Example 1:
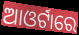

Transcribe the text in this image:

ଆଓର୍ଟାରେ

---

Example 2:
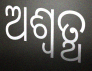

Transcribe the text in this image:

ଅଶ୍ବତ୍ଥ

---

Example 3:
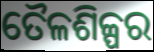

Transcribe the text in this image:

ତୈଳଶିଳ୍ପର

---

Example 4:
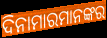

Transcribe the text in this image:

ଦିନାମାରମାନଙ୍କର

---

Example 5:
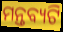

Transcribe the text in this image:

ମନ୍ତବ୍ୟଟି